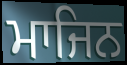
ਮਾਜਿਨ